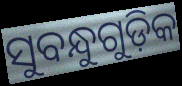
ସୁବନ୍ଧୁଗୁଡ଼ିକ